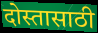
दोस्तासाठी